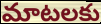
మాటలకు